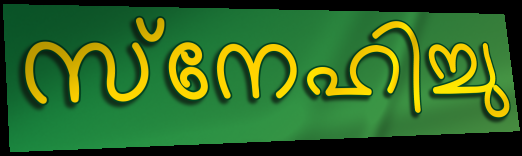
സ്‌നേഹിച്ചു